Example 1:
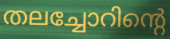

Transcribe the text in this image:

തലച്ചോറിന്റെ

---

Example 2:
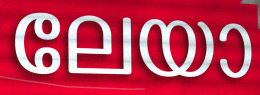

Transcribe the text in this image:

ലേയാ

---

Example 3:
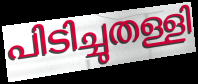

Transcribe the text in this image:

പിടിച്ചുതള്ളി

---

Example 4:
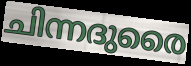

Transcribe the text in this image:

ചിന്നദുരൈ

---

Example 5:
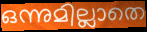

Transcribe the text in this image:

ഒന്നുമില്ലാതെ